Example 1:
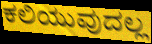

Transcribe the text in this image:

ಕಲಿಯುವುದಲ್ಲ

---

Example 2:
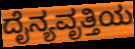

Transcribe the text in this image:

ದೈನ್ಯವೃತ್ತಿಯ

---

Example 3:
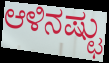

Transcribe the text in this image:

ಆಳಿನಷ್ಟು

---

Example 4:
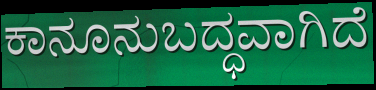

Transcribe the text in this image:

ಕಾನೂನುಬದ್ಧವಾಗಿದೆ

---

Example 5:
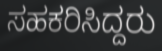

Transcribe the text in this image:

ಸಹಕರಿಸಿದ್ದರು